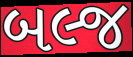
બલ્જ